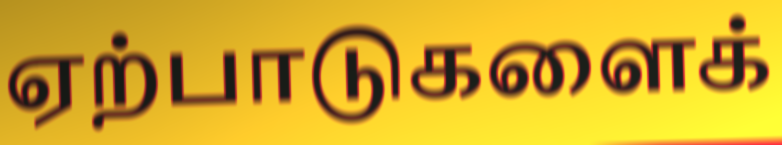
ஏற்பாடுகளைக்